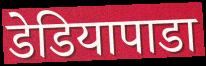
डेडियापाडा